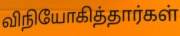
விநியோகித்தார்கள்